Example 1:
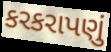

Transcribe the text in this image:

કરકરાપણું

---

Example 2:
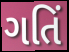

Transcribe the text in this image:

ગતિં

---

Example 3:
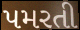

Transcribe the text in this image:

પમરતી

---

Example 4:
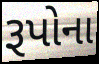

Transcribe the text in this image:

રૂપોના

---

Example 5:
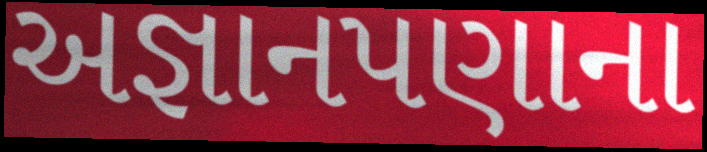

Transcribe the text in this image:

અજ્ઞાનપણાના